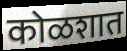
कोळशात